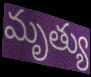
మృత్యు